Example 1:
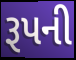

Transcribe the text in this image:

રૂપની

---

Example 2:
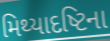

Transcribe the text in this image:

મિથ્યાદષ્ટિના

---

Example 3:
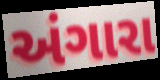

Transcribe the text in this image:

અંગારા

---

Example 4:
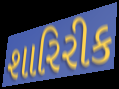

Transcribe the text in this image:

શારિરીક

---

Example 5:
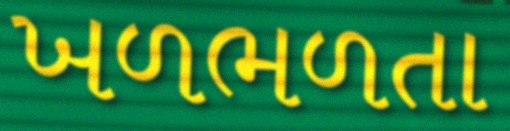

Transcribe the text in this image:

ખળભળતા